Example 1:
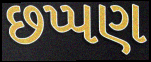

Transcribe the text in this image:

છપ્પણ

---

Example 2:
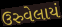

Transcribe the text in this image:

ઉરુવેલાયં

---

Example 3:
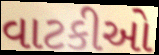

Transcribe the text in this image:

વાટકીઓ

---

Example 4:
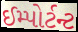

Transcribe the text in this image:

ઈમ્પોર્ટન્ટ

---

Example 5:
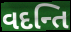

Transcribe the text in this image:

વદન્તિ